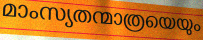
മാംസ്യതന്മാത്രയെയും